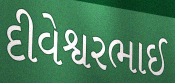
દીવેશ્વરભાઈ